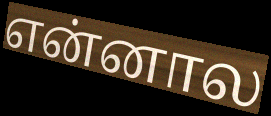
என்னால